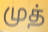
முத்